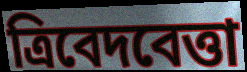
ত্রিবেদবেত্তা